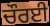
ਚੌਰਈ